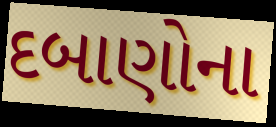
દબાણોના